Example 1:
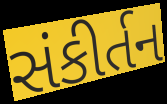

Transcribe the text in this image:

સંકીર્તન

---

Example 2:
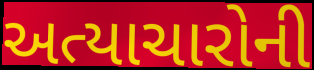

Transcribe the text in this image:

અત્યાચારોની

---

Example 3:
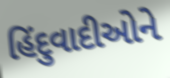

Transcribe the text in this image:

હિંદુવાદીઓને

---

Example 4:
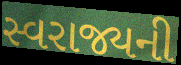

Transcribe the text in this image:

સ્વરાજ્યની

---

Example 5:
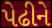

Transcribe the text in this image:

પેઢીને